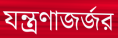
যন্ত্রণাজর্জর